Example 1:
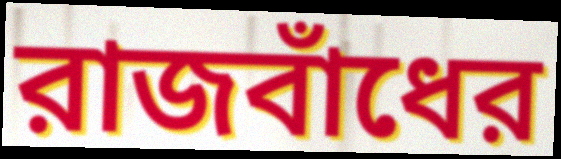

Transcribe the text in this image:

রাজবাঁধের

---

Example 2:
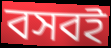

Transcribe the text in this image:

বসবই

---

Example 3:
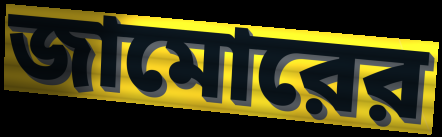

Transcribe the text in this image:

জামোরের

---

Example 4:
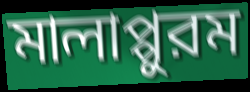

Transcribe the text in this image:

মালাপ্পুরম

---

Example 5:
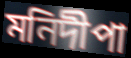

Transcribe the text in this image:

মনিদীপা